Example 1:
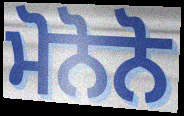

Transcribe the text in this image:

ਮੋਨੋਨੋ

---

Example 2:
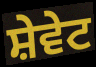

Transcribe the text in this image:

ਸ਼ੇਵੇਟ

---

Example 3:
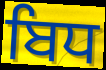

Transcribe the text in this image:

ਬਿਧ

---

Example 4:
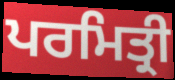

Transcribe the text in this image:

ਪਰਮਿਤ੍ਰੀ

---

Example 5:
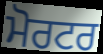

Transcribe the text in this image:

ਮੋਰਟਰ